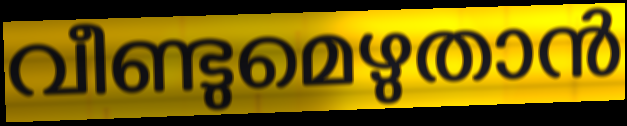
വീണ്ടുമെഴുതാൻ